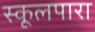
स्कूलपारा